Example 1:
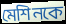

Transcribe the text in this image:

মেশিনকে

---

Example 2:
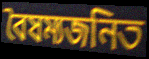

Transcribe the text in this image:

বৈষম্যজনিত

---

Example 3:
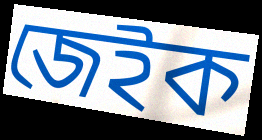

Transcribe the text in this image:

জেইক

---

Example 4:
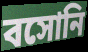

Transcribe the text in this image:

বসোনি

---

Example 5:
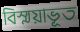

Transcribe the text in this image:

বিস্ময়াভূত